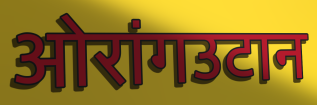
ओरांगउटान